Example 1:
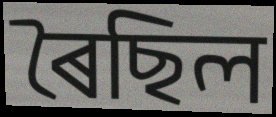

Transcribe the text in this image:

ৰৈছিল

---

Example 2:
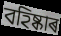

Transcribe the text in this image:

বহিষ্কাৰ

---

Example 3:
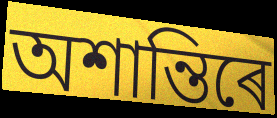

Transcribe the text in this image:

অশান্তিৰে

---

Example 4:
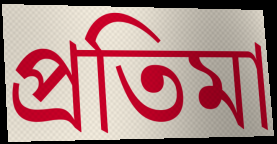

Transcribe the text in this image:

প্ৰতিমা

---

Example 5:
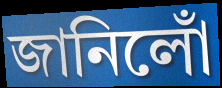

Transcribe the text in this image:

জানিলোঁ